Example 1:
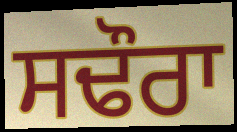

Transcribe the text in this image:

ਸਢੌਰਾ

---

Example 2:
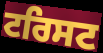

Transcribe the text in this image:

ਟਰਿਸਟ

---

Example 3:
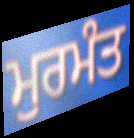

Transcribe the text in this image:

ਮੁਰਮੰਤ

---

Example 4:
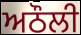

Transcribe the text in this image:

ਅਠੌਲੀ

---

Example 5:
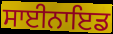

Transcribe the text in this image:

ਸਾਈਨਾਇਡ